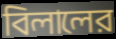
বিলালের